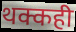
थक्कही